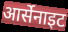
आर्सेनाइट